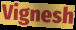
Vignesh